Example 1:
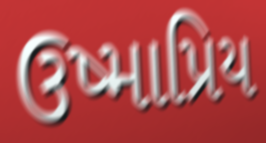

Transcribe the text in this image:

ઉષ્માપ્રિય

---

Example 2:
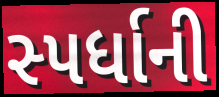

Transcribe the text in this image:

સ્પર્ધાની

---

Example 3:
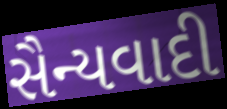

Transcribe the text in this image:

સૈન્યવાદી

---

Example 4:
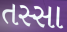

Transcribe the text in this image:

તસ્સા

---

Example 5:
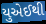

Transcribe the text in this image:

યુએઈથી